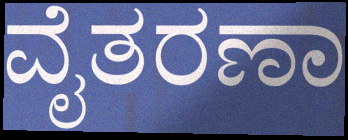
ವೈತರಣಾ